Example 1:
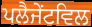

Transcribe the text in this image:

ਪਲੈਜੇਂਟਵਿਲ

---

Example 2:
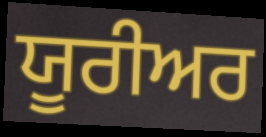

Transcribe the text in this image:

ਯੂਰੀਅਰ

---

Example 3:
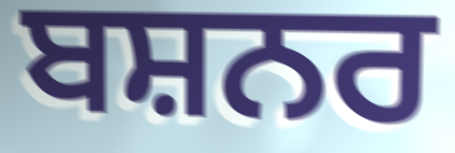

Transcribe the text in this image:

ਬਸ਼ਨਰ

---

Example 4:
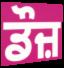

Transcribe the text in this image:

ਡੌਜ਼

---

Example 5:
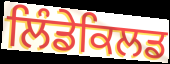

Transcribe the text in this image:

ਲਿੰਡੇਕਿਲਡ